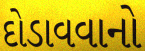
દોડાવવાનો